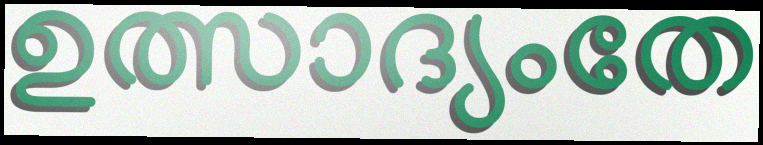
ഉത്സാദ്യംതേ